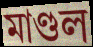
মাণ্ডল